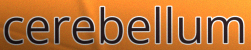
cerebellum